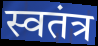
स्‍वतंत्र